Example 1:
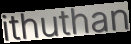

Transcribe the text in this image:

ithuthan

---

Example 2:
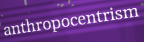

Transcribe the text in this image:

anthropocentrism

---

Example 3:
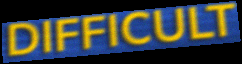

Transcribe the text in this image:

DIFFICULT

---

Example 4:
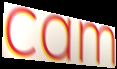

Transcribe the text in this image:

cam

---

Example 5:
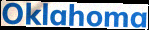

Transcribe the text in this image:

Oklahoma